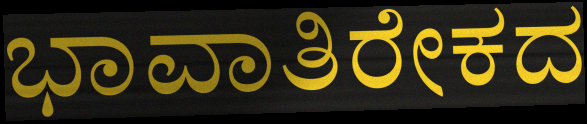
ಭಾವಾತಿರೇಕದ